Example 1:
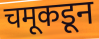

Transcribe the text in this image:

चमूकडून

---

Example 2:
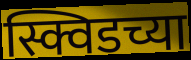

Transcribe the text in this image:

स्क्विडच्या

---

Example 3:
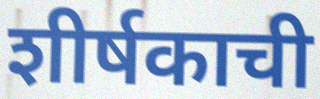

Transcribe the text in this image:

शीर्षकाची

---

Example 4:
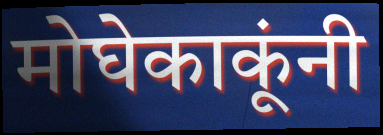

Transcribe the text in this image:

मोघेकाकूंनी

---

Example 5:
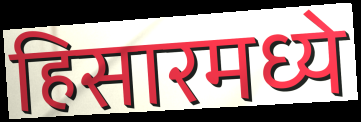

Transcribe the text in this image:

हिसारमध्ये